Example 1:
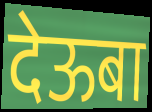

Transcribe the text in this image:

देऊबा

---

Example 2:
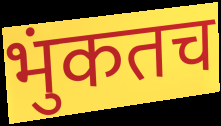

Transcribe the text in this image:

भुंकतच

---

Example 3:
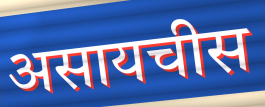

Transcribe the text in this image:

असायचीस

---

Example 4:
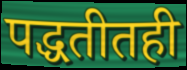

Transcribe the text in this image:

पद्धतीतही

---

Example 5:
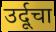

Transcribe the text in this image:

उर्दूचा